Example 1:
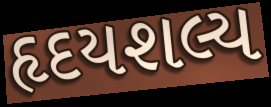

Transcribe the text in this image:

હૃદયશલ્ય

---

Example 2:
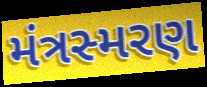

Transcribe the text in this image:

મંત્રસ્મરણ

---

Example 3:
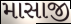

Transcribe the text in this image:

માસાજી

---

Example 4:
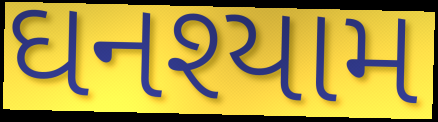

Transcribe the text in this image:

ઘનશ્યામ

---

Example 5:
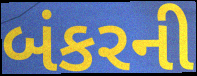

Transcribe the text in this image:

બંકરની